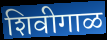
शिवीगाळ